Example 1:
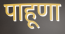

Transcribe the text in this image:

पाहूणा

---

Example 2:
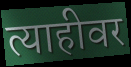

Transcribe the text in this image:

त्याहीवर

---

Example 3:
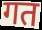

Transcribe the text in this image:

गत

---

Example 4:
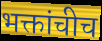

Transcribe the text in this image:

भक्तांचीच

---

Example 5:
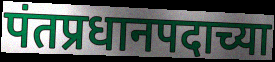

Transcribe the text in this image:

पंतप्रधानपदाच्या